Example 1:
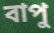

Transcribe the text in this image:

বাপু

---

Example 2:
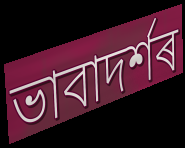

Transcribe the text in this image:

ভাবাদৰ্শৰ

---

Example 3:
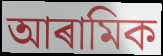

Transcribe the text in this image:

আৰামিক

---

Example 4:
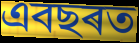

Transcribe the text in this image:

এবছৰত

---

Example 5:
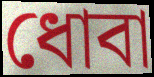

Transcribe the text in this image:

ধোবা